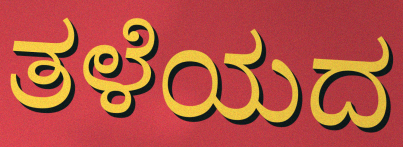
ತಳೆಯದ